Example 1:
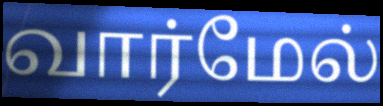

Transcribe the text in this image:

வார்மேல்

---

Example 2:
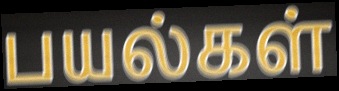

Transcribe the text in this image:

பயல்கள்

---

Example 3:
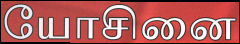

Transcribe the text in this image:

யோசினை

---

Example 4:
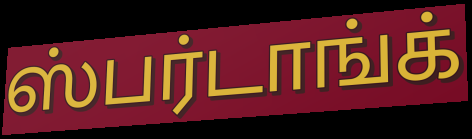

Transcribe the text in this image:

ஸ்பர்டாங்க்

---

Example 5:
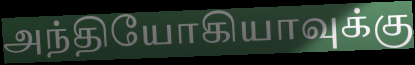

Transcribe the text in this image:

அந்தியோகியாவுக்கு